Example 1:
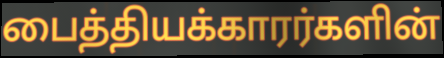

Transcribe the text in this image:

பைத்தியக்காரர்களின்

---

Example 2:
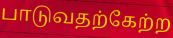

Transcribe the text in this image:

பாடுவதற்கேற்ற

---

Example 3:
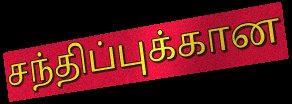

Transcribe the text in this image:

சந்திப்புக்கான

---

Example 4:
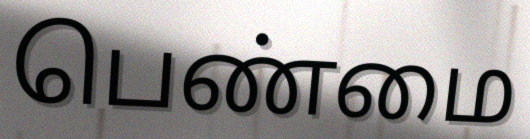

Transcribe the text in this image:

பெண்மை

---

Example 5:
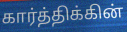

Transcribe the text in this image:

கார்த்திக்கின்